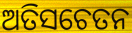
ଅତିସଚେତନ